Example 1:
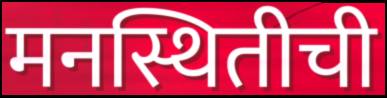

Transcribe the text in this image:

मनस्थितीची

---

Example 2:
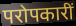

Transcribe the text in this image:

परोपकारीं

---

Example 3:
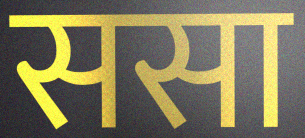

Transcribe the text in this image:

ससा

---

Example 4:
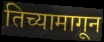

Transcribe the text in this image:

तिच्यामागून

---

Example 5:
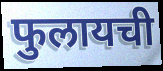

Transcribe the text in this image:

फुलायची